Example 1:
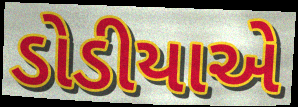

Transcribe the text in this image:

ડોડીયાએ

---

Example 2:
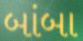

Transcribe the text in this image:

બાંબા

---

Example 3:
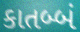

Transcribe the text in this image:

કાતબ્બં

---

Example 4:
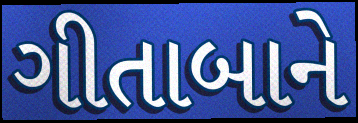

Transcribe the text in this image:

ગીતાબાને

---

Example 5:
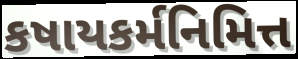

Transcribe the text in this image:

કષાયકર્મનિમિત્ત